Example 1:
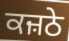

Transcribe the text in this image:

ਕਜ਼ਠੇ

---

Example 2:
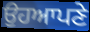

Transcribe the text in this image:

ਉਹਆਪਣੇ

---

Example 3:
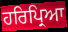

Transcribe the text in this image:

ਹਰਿਪ੍ਰਿਆ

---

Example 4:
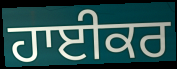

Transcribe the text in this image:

ਹਾਈਕਰ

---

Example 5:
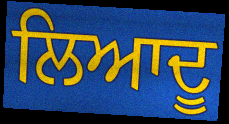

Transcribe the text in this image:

ਲਿਆਦੂ